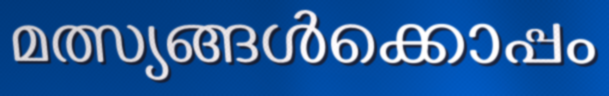
മത്സ്യങ്ങൾക്കൊപ്പം